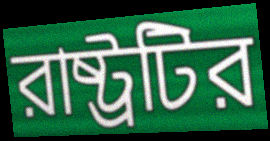
রাষ্ট্রটির